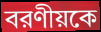
বরণীয়কে